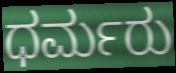
ಧರ್ಮರು